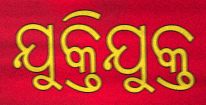
ଯୁକ୍ତିଯୁକ୍ତ